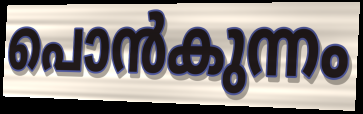
പൊൻകുന്നം